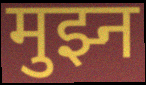
मुझ्न